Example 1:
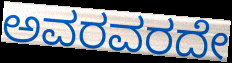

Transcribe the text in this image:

ಅವರವರದೇ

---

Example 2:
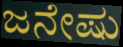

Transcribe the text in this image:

ಜನೇಷು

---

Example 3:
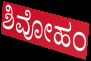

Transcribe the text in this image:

ಶಿವೋಹಂ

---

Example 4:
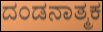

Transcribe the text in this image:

ದಂಡನಾತ್ಮಕ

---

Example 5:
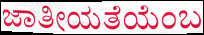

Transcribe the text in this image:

ಜಾತೀಯತೆಯೆಂಬ